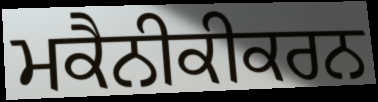
ਮਕੈਨੀਕੀਕਰਨ